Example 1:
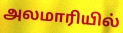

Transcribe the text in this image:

அலமாரியில்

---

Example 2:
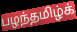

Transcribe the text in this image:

பழந்தமிழ்க்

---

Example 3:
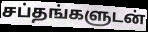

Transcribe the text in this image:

சப்தங்களுடன்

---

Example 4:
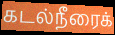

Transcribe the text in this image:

கடல்நீரைக்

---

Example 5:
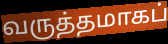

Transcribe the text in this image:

வருத்தமாகப்